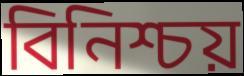
বিনিশ্চয়